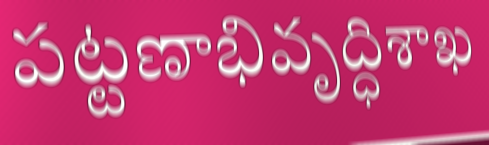
పట్టణాభివృద్ధిశాఖ